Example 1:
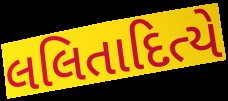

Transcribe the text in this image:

લલિતાદિત્યે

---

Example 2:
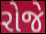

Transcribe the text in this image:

રોજે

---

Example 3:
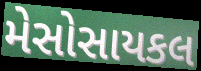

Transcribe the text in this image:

મેસોસાયકલ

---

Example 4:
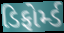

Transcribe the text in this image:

ડિફોર્મ્ડ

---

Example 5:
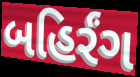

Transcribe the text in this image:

બહિર્રંગ